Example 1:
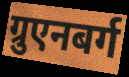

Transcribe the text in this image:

ग्रुएनबर्ग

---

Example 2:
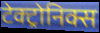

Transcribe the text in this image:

टेक्ट्रोनिक्स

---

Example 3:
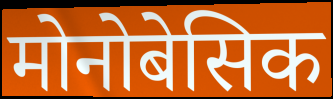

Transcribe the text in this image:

मोनोबेसिक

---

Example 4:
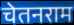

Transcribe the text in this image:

चेतनराम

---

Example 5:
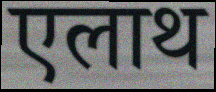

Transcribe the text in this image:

एलाथ